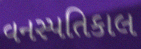
વનસ્પતિકાલ